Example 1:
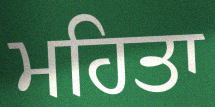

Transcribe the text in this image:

ਮਹਿਤਾ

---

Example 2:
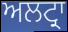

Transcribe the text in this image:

ਅਲਟ੍ਰਾ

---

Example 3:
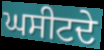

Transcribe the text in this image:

ਘਸੀਟਦੇ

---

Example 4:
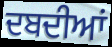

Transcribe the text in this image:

ਦਬਦੀਆਂ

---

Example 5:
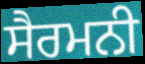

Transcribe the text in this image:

ਸੈਰਮਨੀ